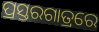
ପ୍ରସ୍ତରଗାତ୍ରରେ